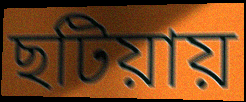
ছটিয়ায়